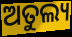
ଅତୁଲ୍ୟ